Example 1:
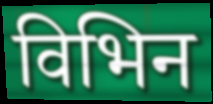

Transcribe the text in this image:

विभिन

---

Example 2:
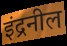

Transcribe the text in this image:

इंद्रनील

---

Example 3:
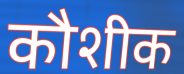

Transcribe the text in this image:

कौशीक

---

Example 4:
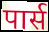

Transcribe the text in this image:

पार्स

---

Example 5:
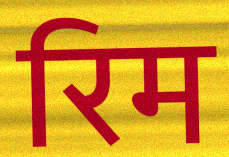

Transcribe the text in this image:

रिम